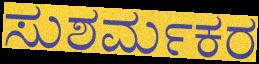
ಸುಶರ್ಮಕರ